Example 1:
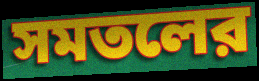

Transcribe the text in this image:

সমতলের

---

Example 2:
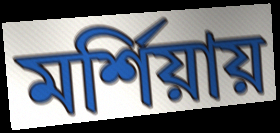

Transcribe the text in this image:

মর্শিয়ায়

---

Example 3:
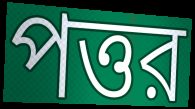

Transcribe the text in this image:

পত্তর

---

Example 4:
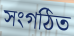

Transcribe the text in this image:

সংগঠিত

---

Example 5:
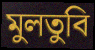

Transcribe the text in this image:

মুলতুবি